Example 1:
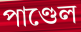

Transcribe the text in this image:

পাণ্ডেল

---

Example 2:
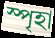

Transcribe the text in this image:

স্পৃহা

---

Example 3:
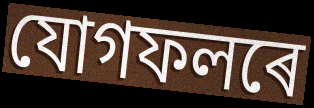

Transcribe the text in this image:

যোগফলৰে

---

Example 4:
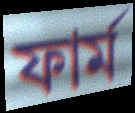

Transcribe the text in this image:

ফাৰ্ম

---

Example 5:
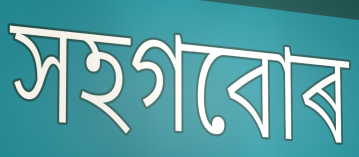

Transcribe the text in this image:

সহগবোৰ